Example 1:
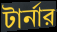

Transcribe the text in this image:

টার্নার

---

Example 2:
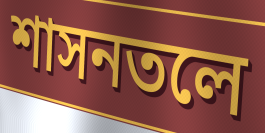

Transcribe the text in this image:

শাসনতলে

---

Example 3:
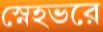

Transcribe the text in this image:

স্নেহভরে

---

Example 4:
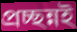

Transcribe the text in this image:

প্রচ্ছন্নই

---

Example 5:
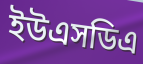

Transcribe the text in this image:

ইউএসডিএ